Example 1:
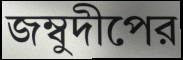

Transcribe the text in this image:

জম্বুদীপের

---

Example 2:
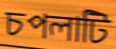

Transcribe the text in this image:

চপলাটি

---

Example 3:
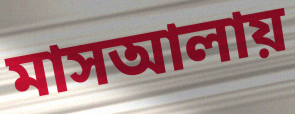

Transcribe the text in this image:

মাসআলায়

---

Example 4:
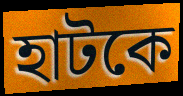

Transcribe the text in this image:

হাটকে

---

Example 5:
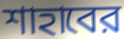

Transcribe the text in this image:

শাহাবের